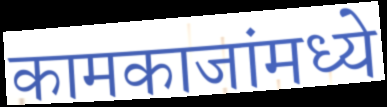
कामकाजांमध्ये